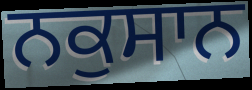
ਨਕੁਸਾਨ